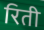
रिती